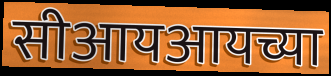
सीआयआयच्या